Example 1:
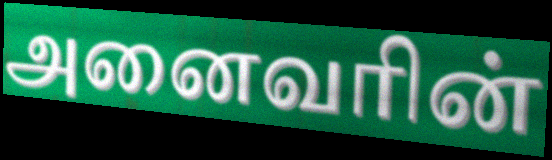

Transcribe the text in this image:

அனைவரின்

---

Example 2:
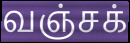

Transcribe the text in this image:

வஞ்சக்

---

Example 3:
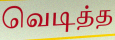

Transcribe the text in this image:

வெடித்த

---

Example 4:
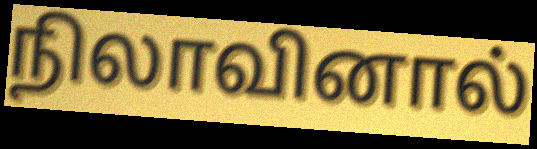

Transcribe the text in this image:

நிலாவினால்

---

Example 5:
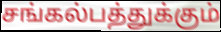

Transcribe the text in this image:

சங்கல்பத்துக்கும்